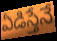
ఏడిస్తేనే